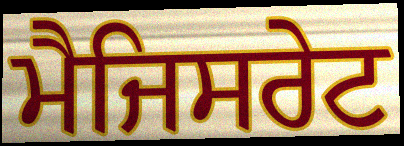
ਮੈਜਿਸਰੇਟ